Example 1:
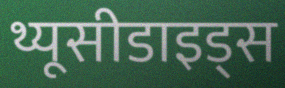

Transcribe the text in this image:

थ्यूसीडाइड्स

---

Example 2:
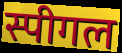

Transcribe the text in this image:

स्पीगल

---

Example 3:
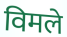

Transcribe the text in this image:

विमले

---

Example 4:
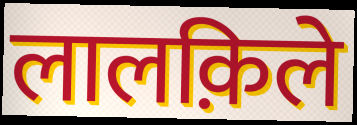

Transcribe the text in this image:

लालक़िले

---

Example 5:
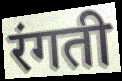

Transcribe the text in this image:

रंगती